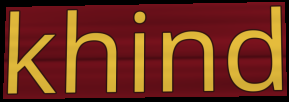
khind